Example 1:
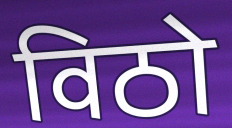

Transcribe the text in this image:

विठो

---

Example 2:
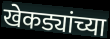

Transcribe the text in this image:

खेकड्यांच्या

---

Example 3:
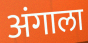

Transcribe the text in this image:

अंगाला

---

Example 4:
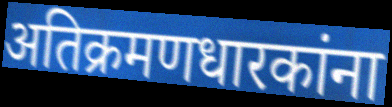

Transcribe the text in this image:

अतिक्रमणधारकांना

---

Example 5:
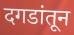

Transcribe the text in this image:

दगडांतून